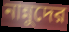
নান্নুদের